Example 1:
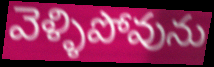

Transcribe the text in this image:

వెళ్ళిపోవును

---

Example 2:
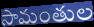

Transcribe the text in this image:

సామంతుల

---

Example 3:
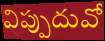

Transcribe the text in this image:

విప్పుదువో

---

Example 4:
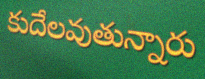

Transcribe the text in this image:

కుదేలవుతున్నారు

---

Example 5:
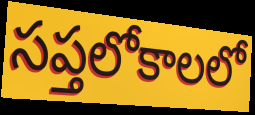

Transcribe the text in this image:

సప్తలోకాలలో